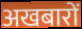
अखबारों